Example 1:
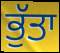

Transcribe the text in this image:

ਭੁੱਤਾ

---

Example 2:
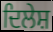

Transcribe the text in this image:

ਦਿਲੇਸ਼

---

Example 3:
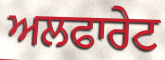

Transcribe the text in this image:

ਅਲਫਾਰੇਟ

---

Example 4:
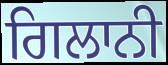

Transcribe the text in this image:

ਗਿਲਾਨੀ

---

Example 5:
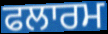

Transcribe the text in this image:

ਫਲਾਰਮ